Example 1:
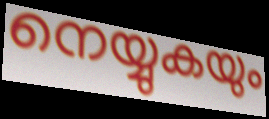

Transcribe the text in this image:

നെയ്യുകയും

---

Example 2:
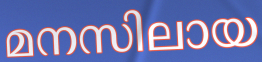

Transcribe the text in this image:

മനസിലായ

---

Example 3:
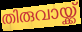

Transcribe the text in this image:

തിരുവായ്ക്ക്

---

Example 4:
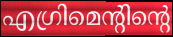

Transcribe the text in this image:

എഗ്രിമെന്റിന്റെ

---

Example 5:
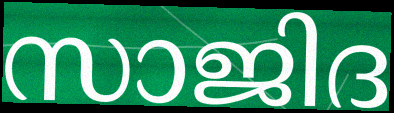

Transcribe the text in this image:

സാജിദ